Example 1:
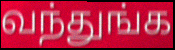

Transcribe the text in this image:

வந்துங்க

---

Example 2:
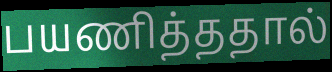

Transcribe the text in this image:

பயணித்ததால்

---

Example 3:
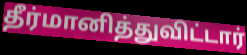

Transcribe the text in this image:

தீர்மானித்துவிட்டார்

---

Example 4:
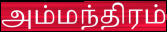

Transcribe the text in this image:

அம்மந்திரம்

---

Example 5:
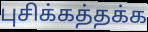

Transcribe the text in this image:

புசிக்கத்தக்க